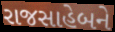
રાજસાહેબને